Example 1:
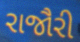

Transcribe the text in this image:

રાજૌરી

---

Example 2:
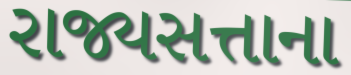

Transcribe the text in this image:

રાજ્યસત્તાના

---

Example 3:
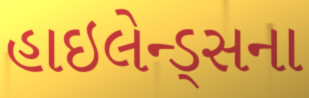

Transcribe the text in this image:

હાઇલેન્ડ્સના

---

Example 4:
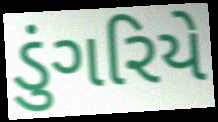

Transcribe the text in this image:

ડુંગરિયે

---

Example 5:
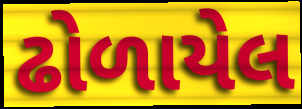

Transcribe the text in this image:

ઢોળાયેલ